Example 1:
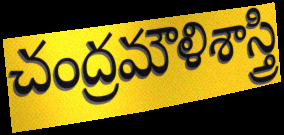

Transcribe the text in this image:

చంద్రమౌళిశాస్త్రి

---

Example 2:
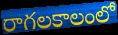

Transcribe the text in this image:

రాగలకాలంలో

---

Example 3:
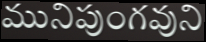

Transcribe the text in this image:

మునిపుంగవుని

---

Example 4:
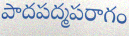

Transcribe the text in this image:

పాదపద్మపరాగం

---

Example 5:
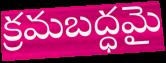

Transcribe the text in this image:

క్రమబద్ధమై